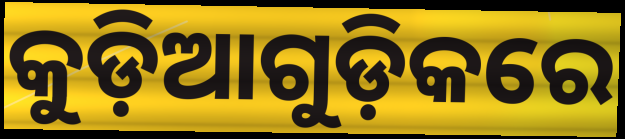
କୁଡ଼ିଆଗୁଡ଼ିକରେ